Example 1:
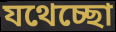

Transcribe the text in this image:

যথেচ্ছো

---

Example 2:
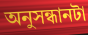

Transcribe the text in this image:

অনুসন্ধানটা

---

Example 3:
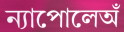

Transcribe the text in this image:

ন্যাপোলেঅঁ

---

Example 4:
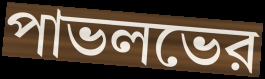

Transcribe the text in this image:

পাভলভের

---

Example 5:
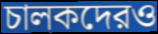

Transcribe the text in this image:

চালকদেরও